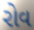
રોવ